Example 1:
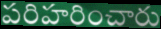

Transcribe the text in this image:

పరిహరించారు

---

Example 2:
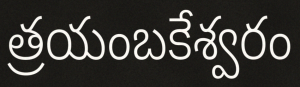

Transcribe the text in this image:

త్రయంబకేశ్వరం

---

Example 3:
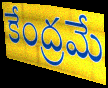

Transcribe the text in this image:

కేంద్రమే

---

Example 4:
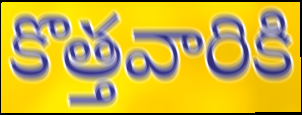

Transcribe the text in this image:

కొత్తవారికి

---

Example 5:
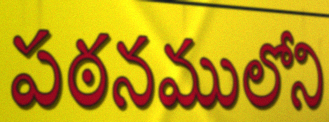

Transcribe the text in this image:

పఠనములోని